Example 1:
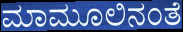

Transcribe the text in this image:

ಮಾಮೂಲಿನಂತೆ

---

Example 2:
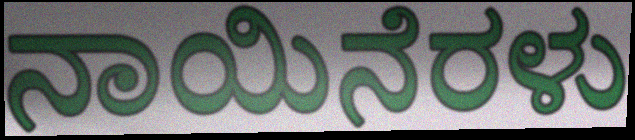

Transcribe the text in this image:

ನಾಯಿನೆರಳು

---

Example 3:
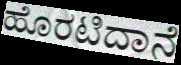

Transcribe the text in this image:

ಹೊರಟಿದಾನೆ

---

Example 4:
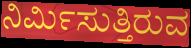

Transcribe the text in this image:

ನಿರ್ಮಿಸುತ್ತಿರುವ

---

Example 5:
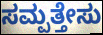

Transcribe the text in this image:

ಸಮ್ಪತ್ತೇಸು